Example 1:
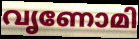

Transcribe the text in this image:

വൃണോമി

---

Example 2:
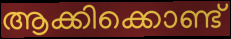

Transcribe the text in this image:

ആക്കിക്കൊണ്ട്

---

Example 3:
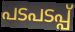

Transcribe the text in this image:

പടപടപ്പ്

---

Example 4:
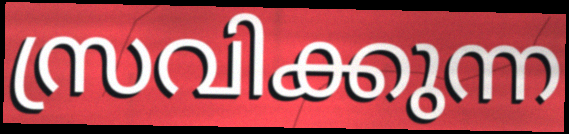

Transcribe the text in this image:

സ്രവിക്കുന്ന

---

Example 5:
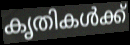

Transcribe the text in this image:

കൃതികൾക്ക്